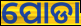
ପୋଡା